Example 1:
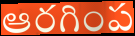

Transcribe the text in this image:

ఆరగింప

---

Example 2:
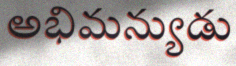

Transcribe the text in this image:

అభిమన్యుడు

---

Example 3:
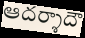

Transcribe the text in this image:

ఆదర్శాదౌ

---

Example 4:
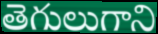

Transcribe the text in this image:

తెగులుగాని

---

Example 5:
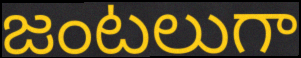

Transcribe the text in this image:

జంటలుగా